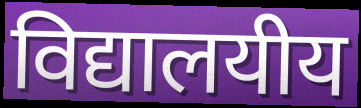
विद्यालयीय